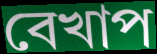
বেখাপ